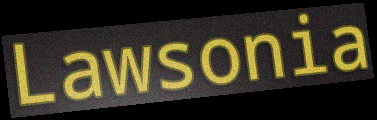
Lawsonia